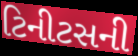
ટિનીટસની